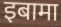
इबामा